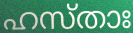
ഹസ്താഃ